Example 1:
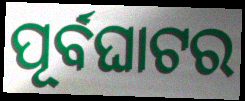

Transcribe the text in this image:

ପୂର୍ବଘାଟର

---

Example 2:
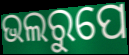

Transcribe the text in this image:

ଭଲରୁପେ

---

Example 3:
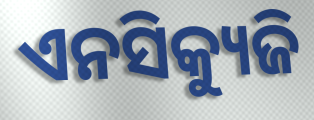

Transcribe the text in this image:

ଏନସିକ୍ୟୁଜି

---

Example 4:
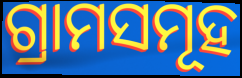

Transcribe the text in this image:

ଗ୍ରାମସମୂହ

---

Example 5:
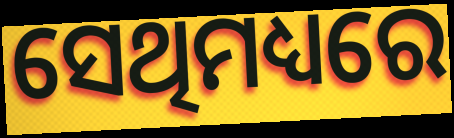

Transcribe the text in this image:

ସେଥିମଧ୍ୟରେ